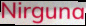
Nirguna